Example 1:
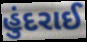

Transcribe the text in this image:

હુંદરાઈ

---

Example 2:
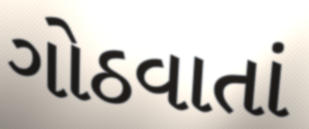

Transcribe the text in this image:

ગોઠવાતાં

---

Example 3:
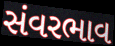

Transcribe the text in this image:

સંવરભાવ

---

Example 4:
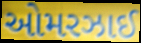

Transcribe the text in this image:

ઓમરઝાઈ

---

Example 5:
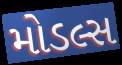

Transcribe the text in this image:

મોડલ્સ